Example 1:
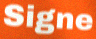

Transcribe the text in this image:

Signe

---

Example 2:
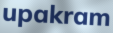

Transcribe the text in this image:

upakram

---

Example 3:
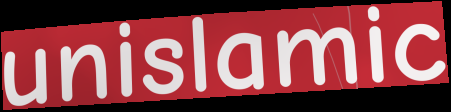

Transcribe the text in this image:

unislamic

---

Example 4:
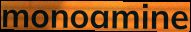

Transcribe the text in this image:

monoamine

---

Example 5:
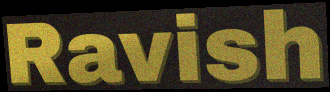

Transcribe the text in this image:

Ravish